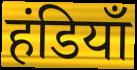
हंडियाँ